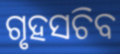
ଗୃହସଚିବ